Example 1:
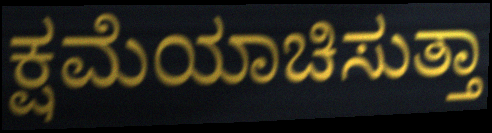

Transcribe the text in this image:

ಕ್ಷಮೆಯಾಚಿಸುತ್ತಾ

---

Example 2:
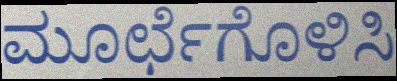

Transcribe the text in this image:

ಮೂರ್ಛೆಗೊಳಿಸಿ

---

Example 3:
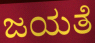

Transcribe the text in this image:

ಜಯತೆ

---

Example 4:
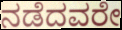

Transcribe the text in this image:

ನಡೆದವರೇ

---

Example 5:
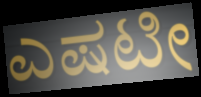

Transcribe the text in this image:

ಎಷಟೀ